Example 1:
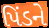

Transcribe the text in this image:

પિંડને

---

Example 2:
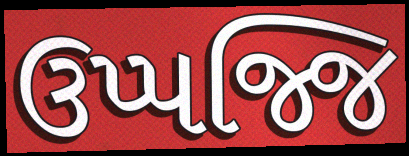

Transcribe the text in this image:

ઉપ્પજ્જિ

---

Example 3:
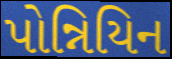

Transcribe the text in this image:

પોન્નિયિન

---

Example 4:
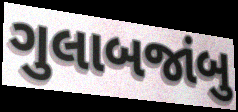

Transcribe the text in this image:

ગુલાબજાંબુ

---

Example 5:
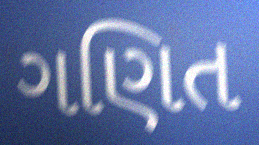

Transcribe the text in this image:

ગણિત